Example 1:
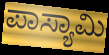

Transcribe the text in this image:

ಪಾಸ್ಯಾಮಿ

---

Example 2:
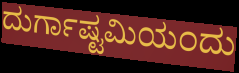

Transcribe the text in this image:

ದುರ್ಗಾಷ್ಟಮಿಯಂದು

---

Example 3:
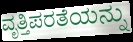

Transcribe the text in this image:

ವೃತ್ತಿಪರತೆಯನ್ನು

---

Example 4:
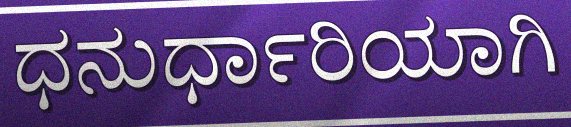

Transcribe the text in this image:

ಧನುರ್ಧಾರಿಯಾಗಿ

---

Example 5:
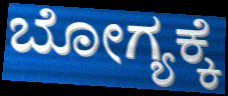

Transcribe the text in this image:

ಬೋಗ್ಯಕ್ಕೆ